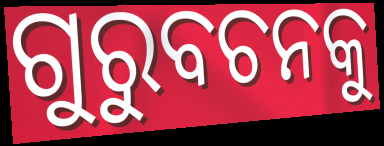
ଗୁରୁବଚନକୁ